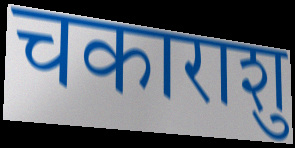
चकाराशु